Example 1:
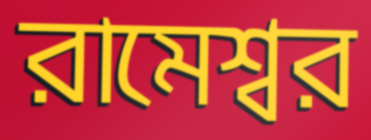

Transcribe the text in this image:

রামেশ্বর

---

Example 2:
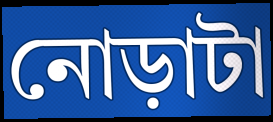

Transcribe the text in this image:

নোড়াটা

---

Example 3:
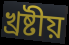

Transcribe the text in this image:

খ্রষ্টীয়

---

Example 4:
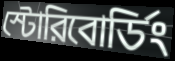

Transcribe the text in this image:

স্টোরিবোর্ডিং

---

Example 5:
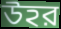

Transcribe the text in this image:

উহর